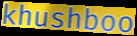
khushboo